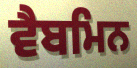
ਵੈਬਮਿਨ